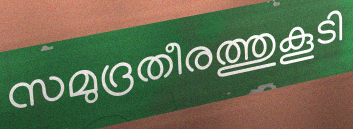
സമുദ്രതീരത്തുകൂടി